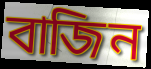
বাজিন